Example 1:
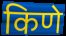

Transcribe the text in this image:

किणे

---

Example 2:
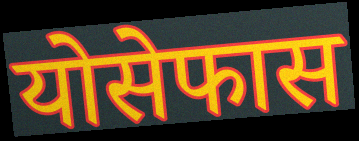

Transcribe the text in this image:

योसेफास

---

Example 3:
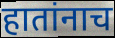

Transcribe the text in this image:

हातांनाच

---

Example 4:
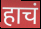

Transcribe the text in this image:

हाचं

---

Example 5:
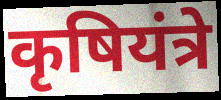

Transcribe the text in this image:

कृषियंत्रे